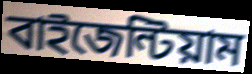
বাইজেন্টিয়াম